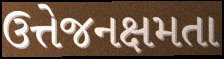
ઉત્તેજનક્ષમતા